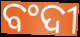
ବଂଦୀ